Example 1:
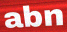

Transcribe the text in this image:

abn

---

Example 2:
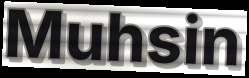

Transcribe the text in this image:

Muhsin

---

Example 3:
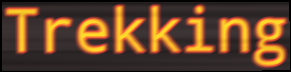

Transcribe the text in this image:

Trekking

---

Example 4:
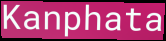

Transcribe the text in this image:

Kanphata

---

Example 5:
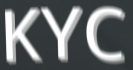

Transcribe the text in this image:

KYC